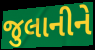
જુલાનીને